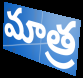
మాత్ర